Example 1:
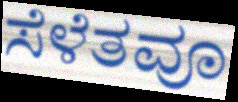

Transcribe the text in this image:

ಸೆಳೆತವೂ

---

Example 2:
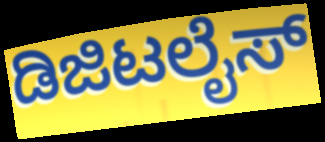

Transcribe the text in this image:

ಡಿಜಿಟಲೈಸ್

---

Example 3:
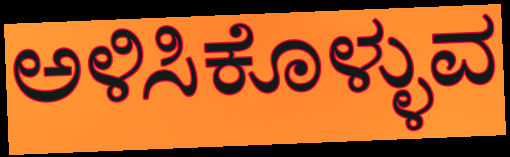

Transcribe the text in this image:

ಅಳಿಸಿಕೊಳ್ಳುವ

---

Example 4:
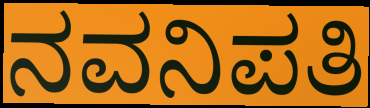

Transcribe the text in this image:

ನವನಿಪತಿ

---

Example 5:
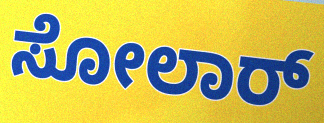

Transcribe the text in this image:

ಸೋಲಾರ್